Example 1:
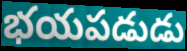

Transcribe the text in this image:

భయపడుడు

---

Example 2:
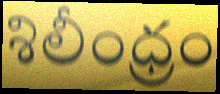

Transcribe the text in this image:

శిలీంధ్రం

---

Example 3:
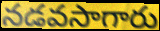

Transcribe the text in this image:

నడవసాగారు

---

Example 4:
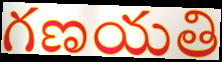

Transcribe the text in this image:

గణయతి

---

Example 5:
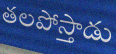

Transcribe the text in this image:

తలపోస్తాడు